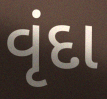
વૃંદા